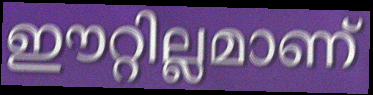
ഈറ്റില്ലമാണ്